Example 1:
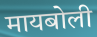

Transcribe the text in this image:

मायबोली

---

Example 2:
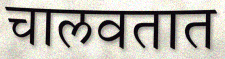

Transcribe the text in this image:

चालवतात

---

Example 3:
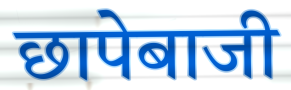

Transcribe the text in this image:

छापेबाजी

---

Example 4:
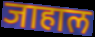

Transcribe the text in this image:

जाहाल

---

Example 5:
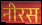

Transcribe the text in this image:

नीरस